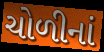
ચોળીનાં